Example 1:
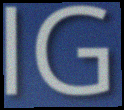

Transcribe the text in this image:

IG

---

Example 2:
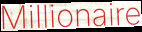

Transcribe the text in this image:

Millionaire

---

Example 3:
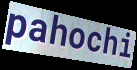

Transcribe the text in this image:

pahochi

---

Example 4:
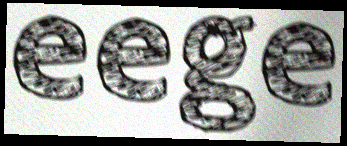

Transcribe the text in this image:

eege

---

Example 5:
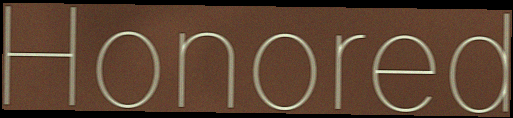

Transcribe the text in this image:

Honored